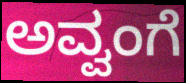
ಅವ್ವಂಗೆ